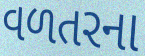
વળતરના